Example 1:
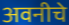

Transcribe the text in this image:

अवनीचे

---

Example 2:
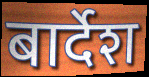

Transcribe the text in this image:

बार्देश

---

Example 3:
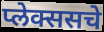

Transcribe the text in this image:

प्लेक्ससचे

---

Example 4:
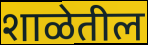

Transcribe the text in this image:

शाळेतील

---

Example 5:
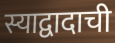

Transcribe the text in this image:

स्याद्वादाची